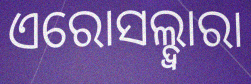
ଏରୋସଲ୍ଦ୍ୱାରା